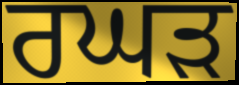
ਰਘੜ